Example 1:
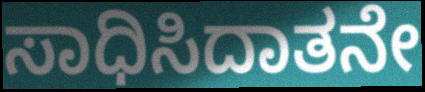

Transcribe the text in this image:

ಸಾಧಿಸಿದಾತನೇ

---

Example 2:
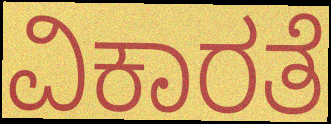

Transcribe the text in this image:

ವಿಕಾರತೆ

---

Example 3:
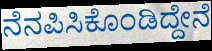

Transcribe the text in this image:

ನೆನಪಿಸಿಕೊಂಡಿದ್ದೇನೆ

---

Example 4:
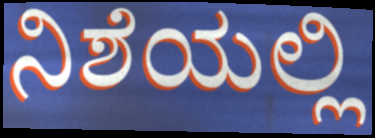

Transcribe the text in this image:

ನಿಶೆಯಲ್ಲಿ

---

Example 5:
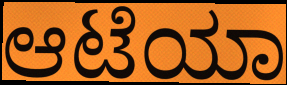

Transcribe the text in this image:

ಆಟೆಯಾ